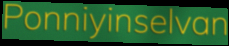
Ponniyinselvan